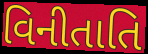
વિનીતાતિ